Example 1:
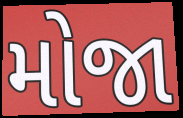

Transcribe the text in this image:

મોજા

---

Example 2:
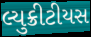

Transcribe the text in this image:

લ્યુક્રીટીયસ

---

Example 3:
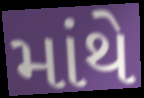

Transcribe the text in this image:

માંથે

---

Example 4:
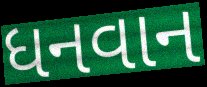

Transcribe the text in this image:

ધનવાન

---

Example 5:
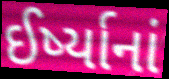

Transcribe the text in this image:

ઈર્ષ્યાનાં